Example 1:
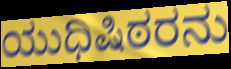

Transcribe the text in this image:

ಯುಧಿಷಿಠರನು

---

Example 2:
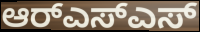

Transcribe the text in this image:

ಆರ್‌ಎಸ್ಎಸ್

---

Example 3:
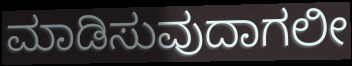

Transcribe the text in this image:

ಮಾಡಿಸುವುದಾಗಲೀ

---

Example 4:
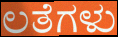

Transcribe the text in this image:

ಲತೆಗಳು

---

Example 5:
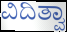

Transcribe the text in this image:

ವಿದಿತ್ವಾ